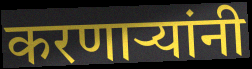
करणार्‍यांनी